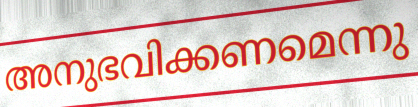
അനുഭവിക്കണമെന്നു